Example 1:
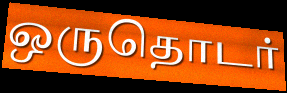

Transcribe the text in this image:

ஒருதொடர்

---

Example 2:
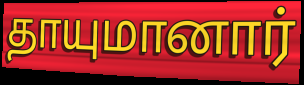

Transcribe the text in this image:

தாயுமானார்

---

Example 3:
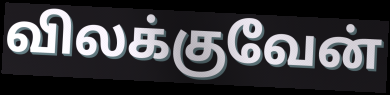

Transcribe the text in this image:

விலக்குவேன்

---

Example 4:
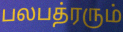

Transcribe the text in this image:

பலபத்ரரும்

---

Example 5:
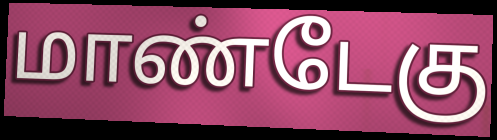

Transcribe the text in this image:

மாண்டேகு